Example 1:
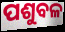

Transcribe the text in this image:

ପଶୁବଳ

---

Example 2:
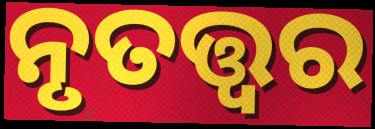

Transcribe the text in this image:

ନୃତତ୍ତ୍ୱର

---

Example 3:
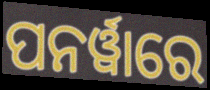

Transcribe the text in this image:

ପନର୍ୱାରେ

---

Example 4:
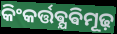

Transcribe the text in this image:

କିଂକର୍ତ୍ତଵ୍ଯଵିମୂଢ଼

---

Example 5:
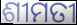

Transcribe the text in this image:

ଶୀମତୀ